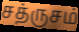
சத்ருசம்